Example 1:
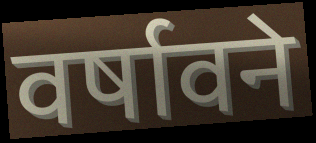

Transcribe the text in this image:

वर्षावने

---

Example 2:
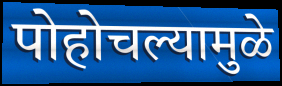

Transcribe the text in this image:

पोहोचल्यामुळे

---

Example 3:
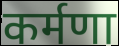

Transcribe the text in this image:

कर्मणा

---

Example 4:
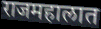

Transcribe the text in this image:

राजमहालात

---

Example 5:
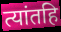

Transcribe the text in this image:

त्यांतहि